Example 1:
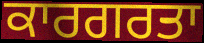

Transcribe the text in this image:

ਕਾਰਗਰਤਾ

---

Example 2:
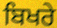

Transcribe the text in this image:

ਬਿਖਰੇ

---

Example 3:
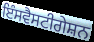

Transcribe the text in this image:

ਇੰਸਵੈਸਟੀਗੇਸ਼ਨ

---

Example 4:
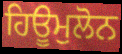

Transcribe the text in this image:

ਹਿਊਮੁਲੋਨ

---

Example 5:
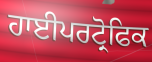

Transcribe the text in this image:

ਹਾਈਪਰਟ੍ਰੋਫਿਕ